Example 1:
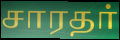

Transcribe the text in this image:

சாரதர்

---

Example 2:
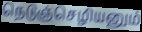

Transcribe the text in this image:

நெடுஞ்செழியனும்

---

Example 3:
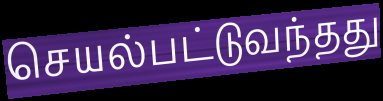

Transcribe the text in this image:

செயல்பட்டுவந்தது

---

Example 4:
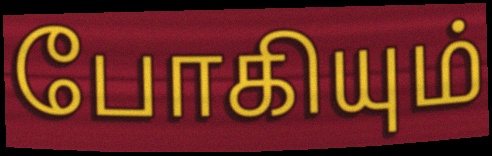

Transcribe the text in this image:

போகியும்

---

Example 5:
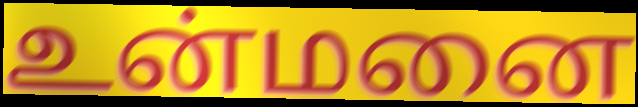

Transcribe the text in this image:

உன்மனை